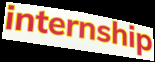
internship